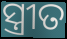
ସ୍ତ୍ରୀତ